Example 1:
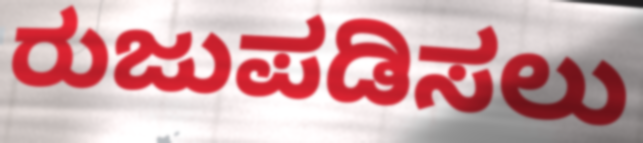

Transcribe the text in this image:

ರುಜುಪಡಿಸಲು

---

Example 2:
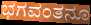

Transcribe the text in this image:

ಭಗವಂತನೂ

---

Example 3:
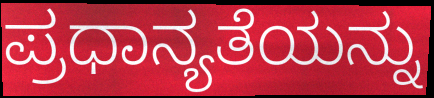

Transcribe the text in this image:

ಪ್ರಧಾನ್ಯತೆಯನ್ನು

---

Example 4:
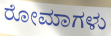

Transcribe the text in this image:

ರೋಮಾಗಳು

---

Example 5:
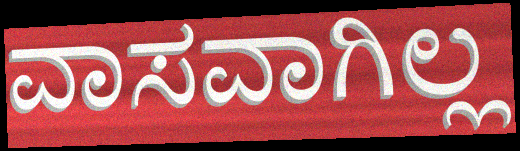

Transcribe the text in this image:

ವಾಸವಾಗಿಲ್ಲ